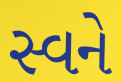
સ્વને